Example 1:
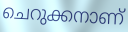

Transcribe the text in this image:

ചെറുക്കനാണ്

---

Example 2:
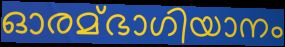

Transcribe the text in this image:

ഓരമ്ഭാഗിയാനം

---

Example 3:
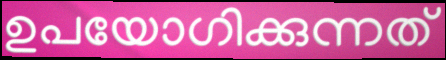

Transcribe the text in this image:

ഉപയോഗിക്കുന്നത്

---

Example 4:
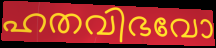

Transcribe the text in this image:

ഹതവിഭവോ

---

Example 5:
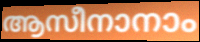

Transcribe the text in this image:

ആസീനാനാം